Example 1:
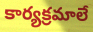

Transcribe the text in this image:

కార్యక్రమాలే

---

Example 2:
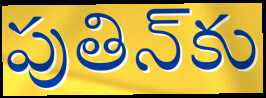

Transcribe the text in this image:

పుతిన్‌కు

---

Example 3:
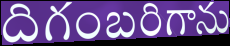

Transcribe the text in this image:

దిగంబరిగాను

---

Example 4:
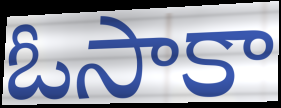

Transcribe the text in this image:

ఓసాకా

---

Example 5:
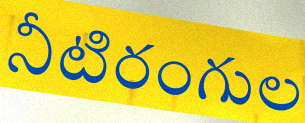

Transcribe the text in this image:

నీటిరంగుల